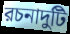
রচনাদুটি